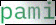
pami